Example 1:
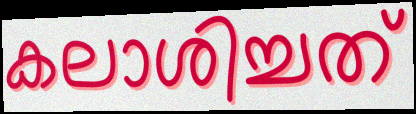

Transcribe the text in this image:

കലാശിച്ചത്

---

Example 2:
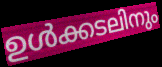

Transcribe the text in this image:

ഉൾക്കടലിനും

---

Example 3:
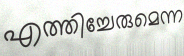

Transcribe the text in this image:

എത്തിച്ചേരുമെന്ന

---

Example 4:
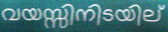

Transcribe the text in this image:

വയസ്സിനിടയില്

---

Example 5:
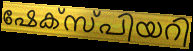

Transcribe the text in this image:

ഷേക്സ്പിയറി